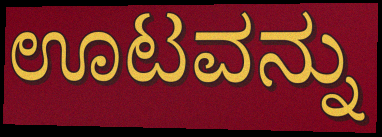
ಊಟವನ್ನು